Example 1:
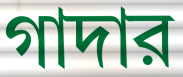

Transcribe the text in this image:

গাদার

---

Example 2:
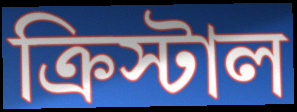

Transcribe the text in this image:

ক্রিস্টাল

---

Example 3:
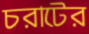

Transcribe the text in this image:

চরাটের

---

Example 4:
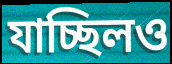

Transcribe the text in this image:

যাচ্ছিলও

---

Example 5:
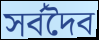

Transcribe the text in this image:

সর্বদৈব